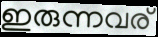
ഇരുന്നവര്